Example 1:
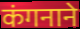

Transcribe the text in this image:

कंगनाने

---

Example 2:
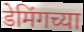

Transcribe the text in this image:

डेमिंगच्या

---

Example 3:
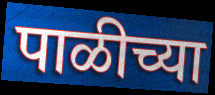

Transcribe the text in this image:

पाळीच्या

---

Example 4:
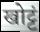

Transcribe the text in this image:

खोट्टं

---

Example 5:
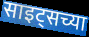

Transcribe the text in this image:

साइट्सच्या